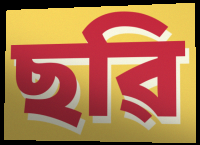
ছৱি